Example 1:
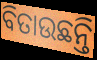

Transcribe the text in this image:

ବିତାଉଛନ୍ତି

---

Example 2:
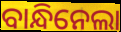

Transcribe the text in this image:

ବାନ୍ଧିନେଲା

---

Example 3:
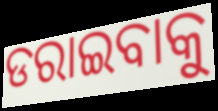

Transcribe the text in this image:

ଡରାଇବାକୁ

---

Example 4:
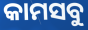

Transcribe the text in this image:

କାମସବୁ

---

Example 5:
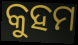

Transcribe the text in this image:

କୁହମ